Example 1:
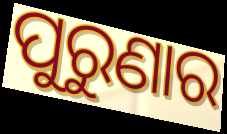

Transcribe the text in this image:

ପୁରୁଣାର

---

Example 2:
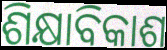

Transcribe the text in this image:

ଶିକ୍ଷାବିକାଶ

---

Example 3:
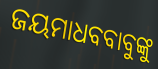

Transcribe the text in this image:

ଜୟମାଧବବାବୁଙ୍କୁ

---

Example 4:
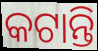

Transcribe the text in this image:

କଟାନ୍ତି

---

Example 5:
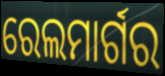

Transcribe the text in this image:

ରେଲମାର୍ଗର